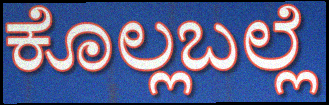
ಕೊಲ್ಲಬಲ್ಲೆ